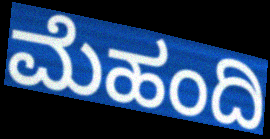
ಮೆಹಂದಿ